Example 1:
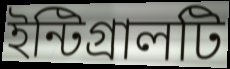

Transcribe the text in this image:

ইন্টিগ্রালটি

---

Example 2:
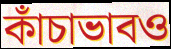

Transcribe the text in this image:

কাঁচাভাবও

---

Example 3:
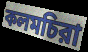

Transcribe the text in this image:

কলমচিরা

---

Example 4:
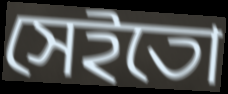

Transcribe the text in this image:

সেইতো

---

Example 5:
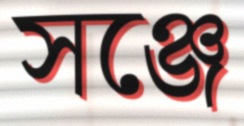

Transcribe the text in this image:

সঞ্জে